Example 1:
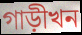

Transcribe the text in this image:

গাড়ীখন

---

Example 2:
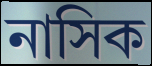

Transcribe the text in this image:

নাসিক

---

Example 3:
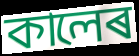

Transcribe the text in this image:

কালেৰ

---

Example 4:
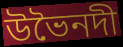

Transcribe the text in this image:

উভৈনদী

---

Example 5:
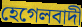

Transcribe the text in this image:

হেগেলবাদী